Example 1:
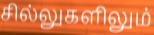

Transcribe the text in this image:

சில்லுகளிலும்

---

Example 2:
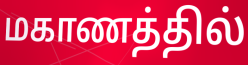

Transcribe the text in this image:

மகாணத்தில்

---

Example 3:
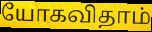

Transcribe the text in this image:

யோகவிதாம்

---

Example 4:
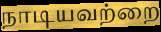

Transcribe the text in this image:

நாடியவற்றை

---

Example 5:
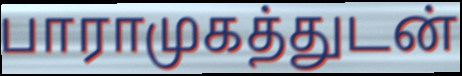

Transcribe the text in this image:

பாராமுகத்துடன்